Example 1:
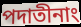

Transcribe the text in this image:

পদাতীনাং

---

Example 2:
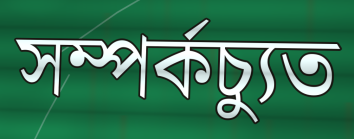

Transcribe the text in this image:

সম্পর্কচ্যুত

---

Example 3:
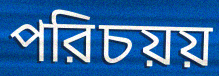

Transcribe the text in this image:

পরিচয়য়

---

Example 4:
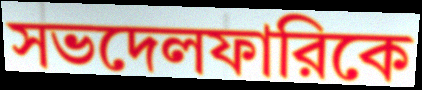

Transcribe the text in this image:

সভদেলফারিকে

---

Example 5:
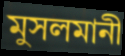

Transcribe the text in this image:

মুসলমানী